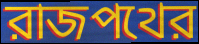
রাজপথের